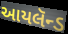
આયલૅન્ડ